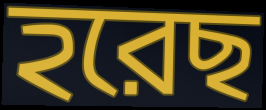
হরেছ